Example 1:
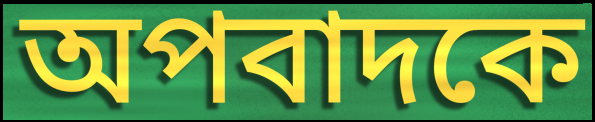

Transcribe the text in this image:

অপবাদকে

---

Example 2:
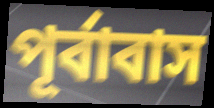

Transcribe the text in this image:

পূর্বাবাস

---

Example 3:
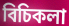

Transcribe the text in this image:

বিচিকলা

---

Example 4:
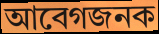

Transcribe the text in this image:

আবেগজনক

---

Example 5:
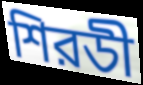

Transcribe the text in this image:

শিরডী